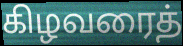
கிழவரைத்